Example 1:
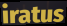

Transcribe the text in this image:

iratus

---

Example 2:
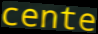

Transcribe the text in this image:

cente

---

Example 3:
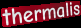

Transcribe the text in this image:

thermalis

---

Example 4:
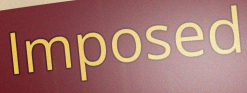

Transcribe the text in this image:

Imposed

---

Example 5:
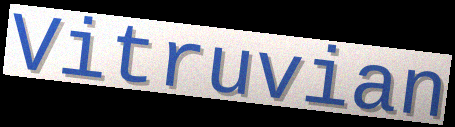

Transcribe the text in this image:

Vitruvian